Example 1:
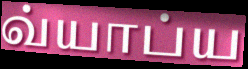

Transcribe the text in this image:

வ்யாப்ய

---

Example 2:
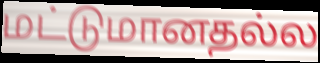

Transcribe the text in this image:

மட்டுமானதல்ல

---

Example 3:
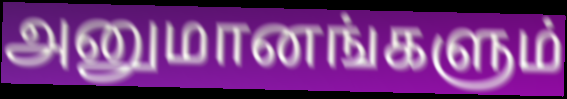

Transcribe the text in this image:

அனுமானங்களும்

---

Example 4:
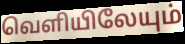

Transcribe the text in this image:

வெளியிலேயும்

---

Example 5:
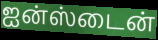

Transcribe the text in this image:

ஐன்ஸ்டைன்